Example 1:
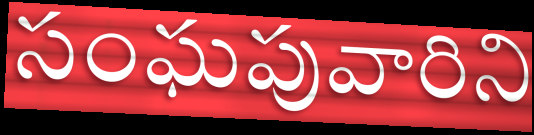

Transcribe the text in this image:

సంఘపువారిని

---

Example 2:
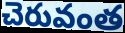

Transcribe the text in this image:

చెరువంత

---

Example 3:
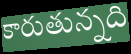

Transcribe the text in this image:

కారుతున్నది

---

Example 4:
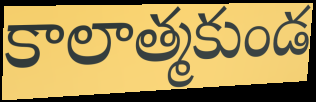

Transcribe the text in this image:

కాలాత్మకుండ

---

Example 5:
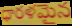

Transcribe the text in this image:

ధారళమైన